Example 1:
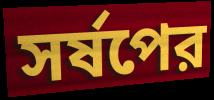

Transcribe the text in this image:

সর্ষপের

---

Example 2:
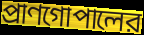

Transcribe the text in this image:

প্রাণগোপালের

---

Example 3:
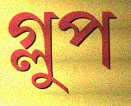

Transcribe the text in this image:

গ্লুপ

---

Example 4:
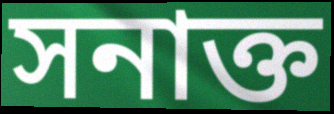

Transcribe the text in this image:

সনাক্ত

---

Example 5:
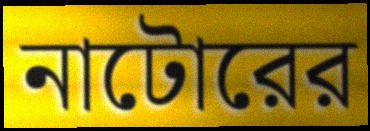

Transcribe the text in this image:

নাটোরের